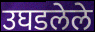
उघडलेले